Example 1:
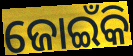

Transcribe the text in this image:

ଜୋଇଁକି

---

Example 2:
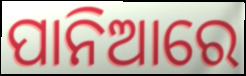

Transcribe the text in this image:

ପାନିଆରେ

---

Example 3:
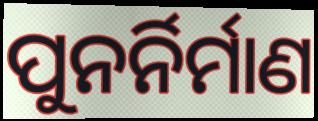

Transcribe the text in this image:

ପୁନର୍ନିର୍ମାଣ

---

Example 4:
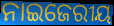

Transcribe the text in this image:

ନାଇଜେରୀୟ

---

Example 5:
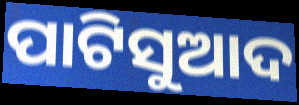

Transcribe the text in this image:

ପାଟିସୁଆଦ